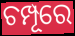
ଚମ୍ପୂରେ